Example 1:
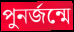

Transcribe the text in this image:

পুনর্জন্মে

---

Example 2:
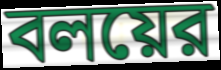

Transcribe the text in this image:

বলয়ের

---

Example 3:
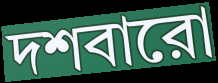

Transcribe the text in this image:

দশবারো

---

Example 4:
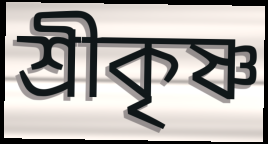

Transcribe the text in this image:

শ্রীকৃষ্ণ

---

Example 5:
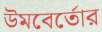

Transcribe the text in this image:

উমবের্তোর